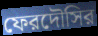
ফেরদৌসির